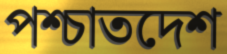
পশ্চাতদেশ